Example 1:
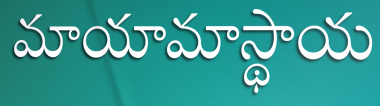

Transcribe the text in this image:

మాయామాస్థాయ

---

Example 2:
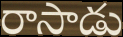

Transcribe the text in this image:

రాసాడు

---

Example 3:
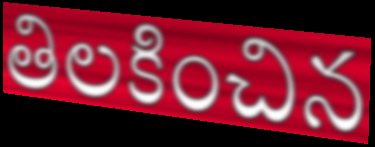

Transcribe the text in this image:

తిలకించిన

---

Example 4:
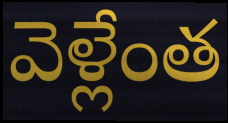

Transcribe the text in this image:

వెళ్లేంత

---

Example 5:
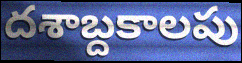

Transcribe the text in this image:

దశాబ్దకాలపు